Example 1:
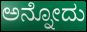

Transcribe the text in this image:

ಅನ್ನೋದು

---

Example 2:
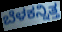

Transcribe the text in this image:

ಬೆಳಕನ್ನಿತ್ತ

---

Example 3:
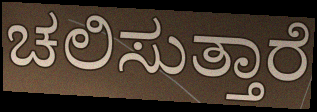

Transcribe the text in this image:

ಚಲಿಸುತ್ತಾರೆ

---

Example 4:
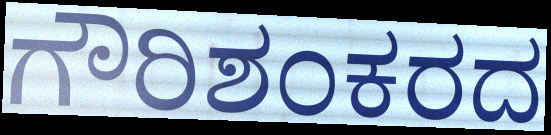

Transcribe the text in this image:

ಗೌರಿಶಂಕರದ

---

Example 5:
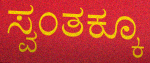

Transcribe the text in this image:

ಸ್ವಂತಕ್ಕೂ